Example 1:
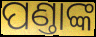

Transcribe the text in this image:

ପଣ୍ତାଙ୍କ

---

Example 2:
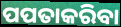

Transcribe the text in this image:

ପପତାକରିବା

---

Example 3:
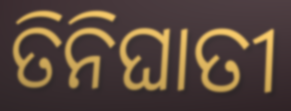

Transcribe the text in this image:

ତିନିଘାତୀ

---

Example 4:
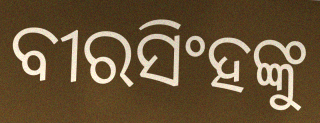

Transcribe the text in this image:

ବୀରସିଂହଙ୍କୁ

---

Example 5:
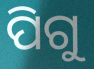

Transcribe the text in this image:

ପିଗୁ